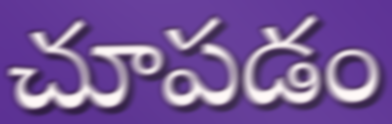
చూపడం